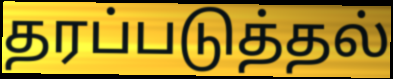
தரப்படுத்தல்